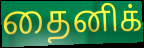
தைனிக்